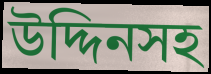
উদ্দিনসহ